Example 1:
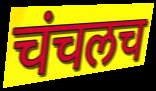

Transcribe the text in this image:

चंचलच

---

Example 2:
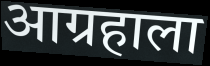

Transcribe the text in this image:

आग्रहाला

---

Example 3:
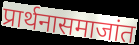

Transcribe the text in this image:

प्रार्थनासमाजांत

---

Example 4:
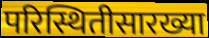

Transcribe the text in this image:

परिस्थितीसारख्या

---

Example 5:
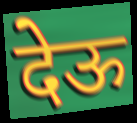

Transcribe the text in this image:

देऊ